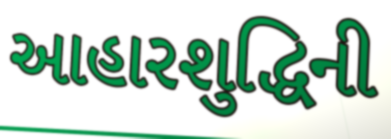
આહારશુદ્ધિની